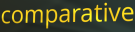
comparative